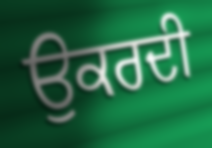
ਉਕਰਦੀ